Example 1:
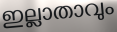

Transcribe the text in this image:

ഇല്ലാതാവും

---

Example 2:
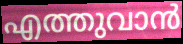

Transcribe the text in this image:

എത്തുവാൻ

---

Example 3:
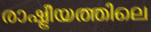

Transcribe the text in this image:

രാഷ്ട്രീയത്തിലെ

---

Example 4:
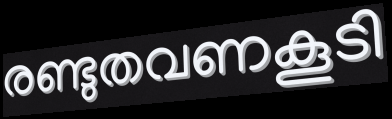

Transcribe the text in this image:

രണ്ടുതവണകൂടി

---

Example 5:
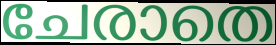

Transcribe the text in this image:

ചേരാതെ